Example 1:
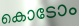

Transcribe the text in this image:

കൊടോം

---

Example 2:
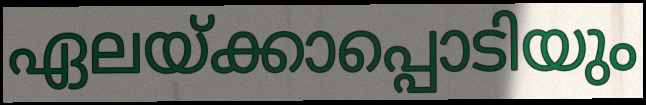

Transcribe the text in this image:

ഏലയ്ക്കാപ്പൊടിയും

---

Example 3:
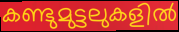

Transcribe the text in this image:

കണ്ടുമുട്ടലുകളിൽ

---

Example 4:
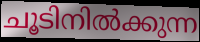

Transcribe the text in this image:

ചൂടിനിൽക്കുന്ന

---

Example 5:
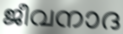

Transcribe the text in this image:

ജീവനാദ